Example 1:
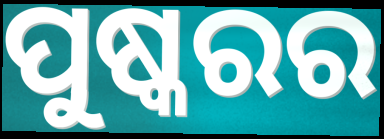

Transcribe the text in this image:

ପୁଷ୍କରର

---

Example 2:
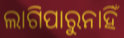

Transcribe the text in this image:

ଲାଗିପାରୁନାହିଁ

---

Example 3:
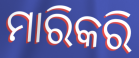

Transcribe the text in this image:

ମାରିକରି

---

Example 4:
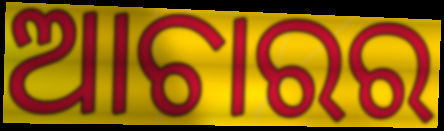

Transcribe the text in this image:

ଆଚାରର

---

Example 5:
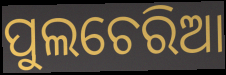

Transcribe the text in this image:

ପୁଲଚେରିଆ